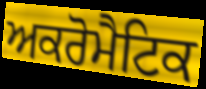
ਅਕਰੋਮੈਟਿਕ